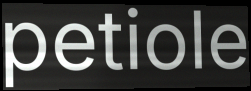
petiole